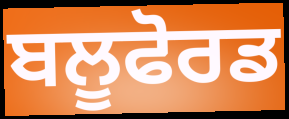
ਬਲੂਫੋਰਡ